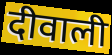
दीवाली